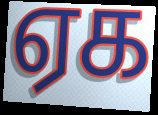
ஏக